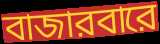
বাজারবারে